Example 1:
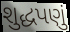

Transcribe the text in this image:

શુદ્ધપણું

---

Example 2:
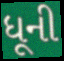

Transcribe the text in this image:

ધૂની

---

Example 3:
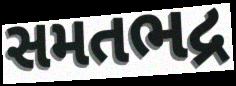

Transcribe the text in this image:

સમતભદ્ર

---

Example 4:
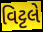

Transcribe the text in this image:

વિટ્ટલે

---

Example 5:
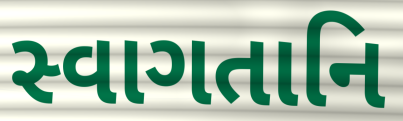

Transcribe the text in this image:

સ્વાગતાનિ